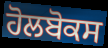
ਹੋਲਬੋਕਸ